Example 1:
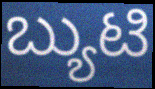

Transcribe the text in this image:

ಬ್ಯುಟಿ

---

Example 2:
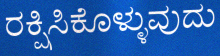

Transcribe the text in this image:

ರಕ್ಷಿಸಿಕೊಳ್ಳುವುದು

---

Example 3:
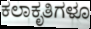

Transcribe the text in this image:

ಕಲಾಕೃತಿಗಳೂ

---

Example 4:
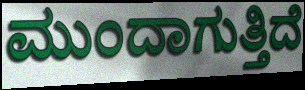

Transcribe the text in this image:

ಮುಂದಾಗುತ್ತಿದೆ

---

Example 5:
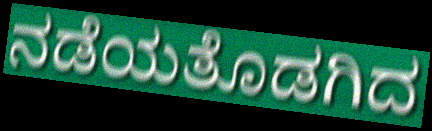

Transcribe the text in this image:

ನಡೆಯತೊಡಗಿದ